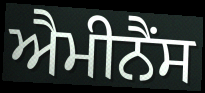
ਐਮੀਨੈਂਸ